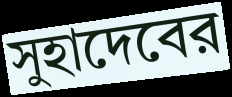
সুহাদেবের